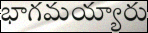
భాగమయ్యారు